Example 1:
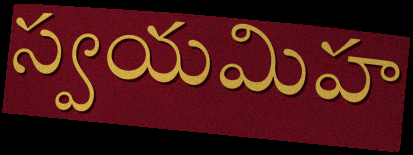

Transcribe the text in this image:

స్వయమిహ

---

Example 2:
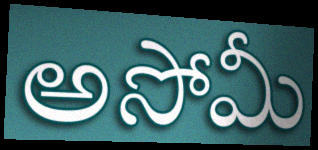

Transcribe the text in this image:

అసోమీ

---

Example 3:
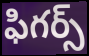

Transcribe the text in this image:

ఫిగర్స్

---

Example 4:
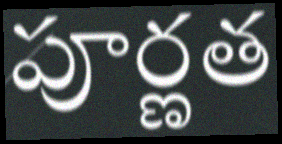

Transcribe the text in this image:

పూర్ణత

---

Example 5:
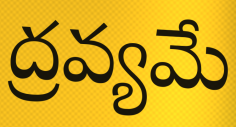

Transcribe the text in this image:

ద్రవ్యమే